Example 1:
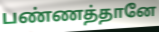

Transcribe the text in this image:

பண்ணத்தானே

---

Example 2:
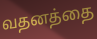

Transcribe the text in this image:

வதனத்தை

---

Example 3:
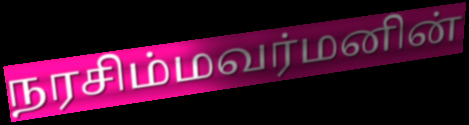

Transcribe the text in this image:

நரசிம்மவர்மனின்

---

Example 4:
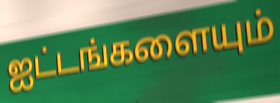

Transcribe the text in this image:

ஐட்டங்களையும்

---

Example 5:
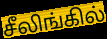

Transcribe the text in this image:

சீலிங்கில்